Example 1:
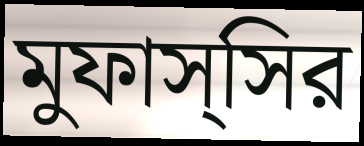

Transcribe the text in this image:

মুফাস্সির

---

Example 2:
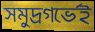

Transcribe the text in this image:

সমুদ্রগর্ভেই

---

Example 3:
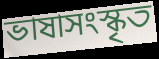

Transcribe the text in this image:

ভাষাসংস্কৃত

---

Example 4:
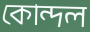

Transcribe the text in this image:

কোন্দল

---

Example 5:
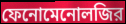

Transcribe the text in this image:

ফেনোমেনোলজির